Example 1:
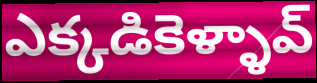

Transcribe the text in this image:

ఎక్కడికెళ్ళావ్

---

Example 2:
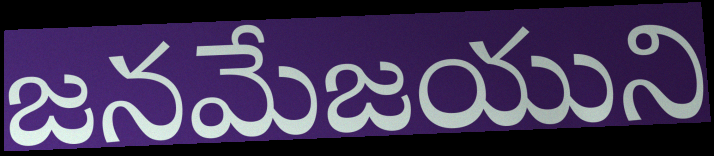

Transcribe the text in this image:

జనమేజయుని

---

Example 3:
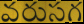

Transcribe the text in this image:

వరుసగ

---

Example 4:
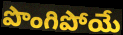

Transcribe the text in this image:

పొంగిపోయే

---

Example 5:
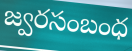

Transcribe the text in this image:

జ్వరసంబంధ